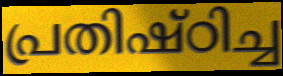
പ്രതിഷ്ഠിച്ച